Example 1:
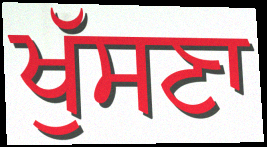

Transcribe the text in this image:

ਖੁੱਸਣਾ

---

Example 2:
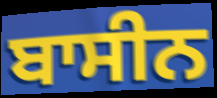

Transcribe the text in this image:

ਬਾਸੀਨ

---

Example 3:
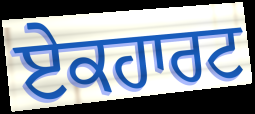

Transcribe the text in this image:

ਏਕਹਾਰਟ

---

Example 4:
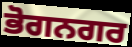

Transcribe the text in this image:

ਭੋਗਨਗਰ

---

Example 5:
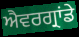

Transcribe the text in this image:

ਐਵਰਗ੍ਰਾਂਡੇ